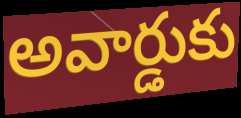
అవార్డుకు